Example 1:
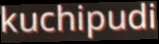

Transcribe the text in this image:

kuchipudi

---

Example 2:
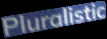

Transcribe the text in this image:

Pluralistic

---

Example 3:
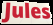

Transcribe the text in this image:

Jules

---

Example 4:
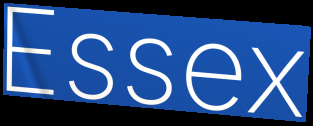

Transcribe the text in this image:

Essex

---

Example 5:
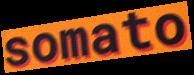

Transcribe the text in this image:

somato